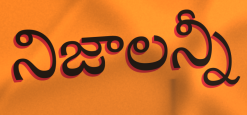
నిజాలన్నీ